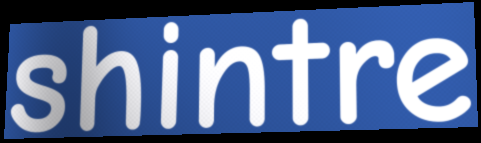
shintre